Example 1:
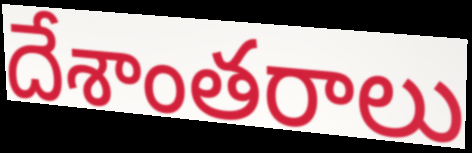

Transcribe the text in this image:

దేశాంతరాలు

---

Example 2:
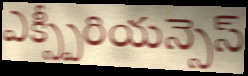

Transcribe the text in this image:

ఎక్స్పీరియన్సెస్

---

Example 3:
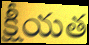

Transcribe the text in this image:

క్షీయత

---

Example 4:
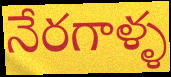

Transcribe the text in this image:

నేరగాళ్ళ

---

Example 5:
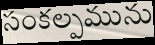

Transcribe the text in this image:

సంకల్పమును